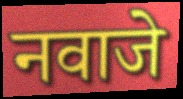
नवाजे